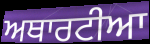
ਅਥਾਰਟੀਆ